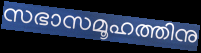
സഭാസമൂഹത്തിനു